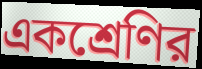
একশ্রেণির